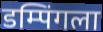
डम्पिंगला